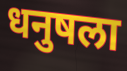
धनुषला